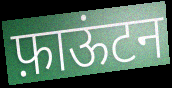
फ़ाऊंटन